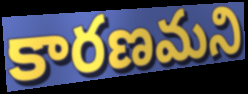
కారణమని